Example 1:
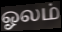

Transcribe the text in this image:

ஓலம்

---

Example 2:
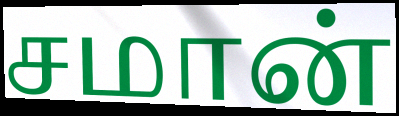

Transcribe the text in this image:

சமான்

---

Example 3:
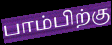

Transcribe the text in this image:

பாம்பிற்கு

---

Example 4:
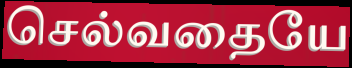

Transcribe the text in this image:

செல்வதையே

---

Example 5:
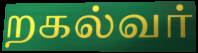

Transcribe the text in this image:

றகல்வர்